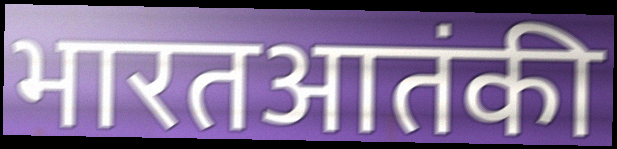
भारतआतंकी